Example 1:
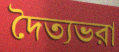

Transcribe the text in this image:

দৈত্যভরা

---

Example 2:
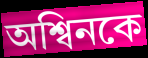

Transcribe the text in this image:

অশ্বিনকে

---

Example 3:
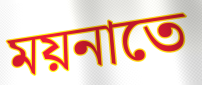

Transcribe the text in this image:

ময়নাতে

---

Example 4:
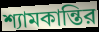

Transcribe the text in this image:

শ্যামকান্তির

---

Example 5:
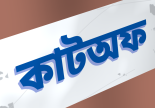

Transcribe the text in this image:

কাটঅফ